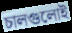
চালগুলোই